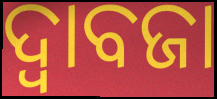
ଦ୍ୱାବଜା